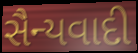
સૈન્યવાદી